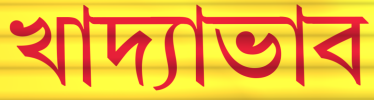
খাদ্যাভাব